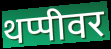
थप्पीवर